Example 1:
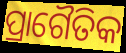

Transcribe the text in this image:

ପ୍ରାଗୈତିକ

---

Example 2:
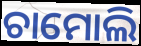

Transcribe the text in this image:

ଚାମୋଲି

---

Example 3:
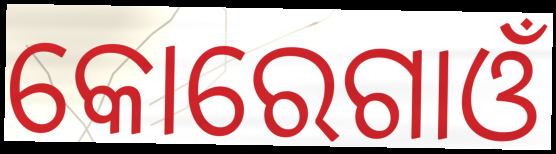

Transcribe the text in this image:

କୋରେଗାଓଁ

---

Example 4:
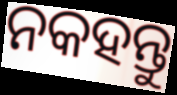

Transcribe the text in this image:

ନକହନ୍ତୁ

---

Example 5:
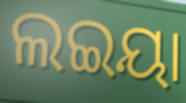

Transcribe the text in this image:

ଲଇୟା